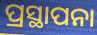
ପ୍ରସ୍ଥାପନା